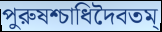
পুরুষশ্চাধিদৈবতম্